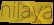
nilaya